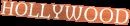
HOLLYWOOD